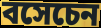
বসেচেন